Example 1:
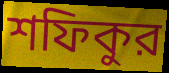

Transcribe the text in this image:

শফিকুর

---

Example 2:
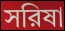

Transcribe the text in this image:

সরিষা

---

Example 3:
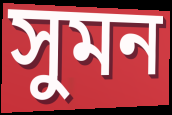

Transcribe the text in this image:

সুমন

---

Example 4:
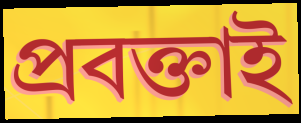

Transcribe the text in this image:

প্রবক্তাই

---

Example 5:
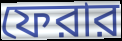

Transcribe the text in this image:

ফেরার